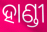
ହାଣ୍ଡୀ